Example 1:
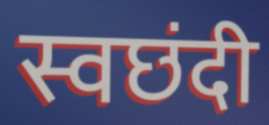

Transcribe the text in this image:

स्वछंदी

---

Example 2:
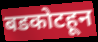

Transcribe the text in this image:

बडकोटहून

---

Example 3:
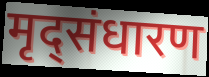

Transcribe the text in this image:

मृद्संधारण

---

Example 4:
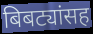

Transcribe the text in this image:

बिबट्यांसह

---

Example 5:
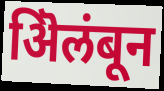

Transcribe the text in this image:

ऄिलंबून